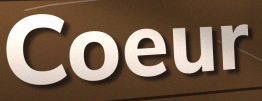
Coeur